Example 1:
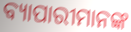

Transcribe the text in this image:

ବ୍ୟାପାରୀମାନଙ୍କ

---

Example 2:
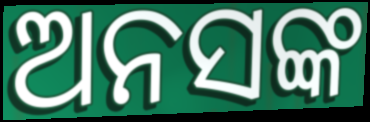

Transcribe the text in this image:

ଅନସଙ୍କ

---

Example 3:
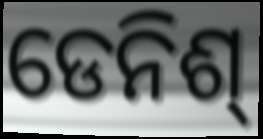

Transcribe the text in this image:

ଡେନିଶ୍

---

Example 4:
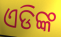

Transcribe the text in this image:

ଏଡିଙ୍କ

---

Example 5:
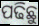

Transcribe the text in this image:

ପଢିଛୁ